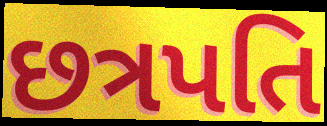
છત્રપતિ